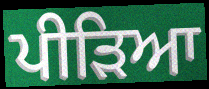
ਪੀੜਿਆ